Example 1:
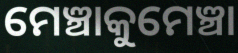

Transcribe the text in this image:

ମେଞ୍ଚାକୁମେଞ୍ଚା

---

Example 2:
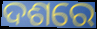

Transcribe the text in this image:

ଦଶରେ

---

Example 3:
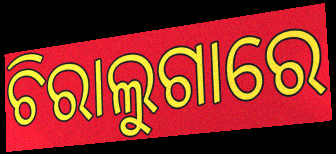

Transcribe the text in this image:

ଚିରାଲୁଗାରେ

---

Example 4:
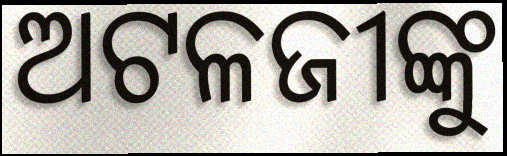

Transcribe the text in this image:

ଅଟଳଜୀଙ୍କୁ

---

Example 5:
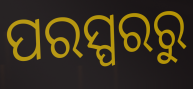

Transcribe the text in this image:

ପରସ୍ପରରୁ